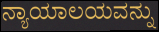
ನ್ಯಾಯಾಲಯವನ್ನು